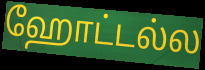
ஹோட்டல்ல